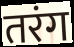
तरंग